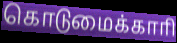
கொடுமைக்காரி